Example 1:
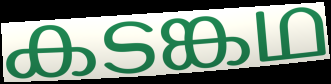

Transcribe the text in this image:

കടങ്കഥ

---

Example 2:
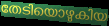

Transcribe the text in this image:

തേടിയൊഴുകിയ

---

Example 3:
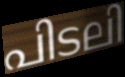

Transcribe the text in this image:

പിടലി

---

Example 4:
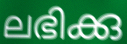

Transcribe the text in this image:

ലഭിക്കു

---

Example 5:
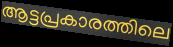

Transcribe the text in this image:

ആട്ടപ്രകാരത്തിലെ